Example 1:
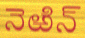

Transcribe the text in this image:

నెఱిన్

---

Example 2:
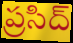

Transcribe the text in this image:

ప్రసిద్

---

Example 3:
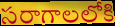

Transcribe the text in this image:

సరాగాలలోకి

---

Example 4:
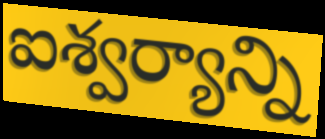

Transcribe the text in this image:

ఐశ్వర్యాన్ని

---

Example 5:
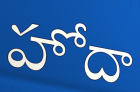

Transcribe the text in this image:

హోదా